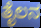
ತೈಲನ